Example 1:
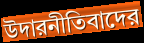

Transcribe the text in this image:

উদারনীতিবাদের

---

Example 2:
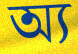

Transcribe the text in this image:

অ্য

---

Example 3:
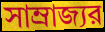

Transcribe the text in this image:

সাম্রাজ্যর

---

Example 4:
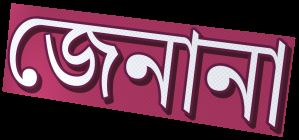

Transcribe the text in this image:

জেনানা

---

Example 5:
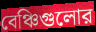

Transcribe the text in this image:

বেঞ্চিগুলোর